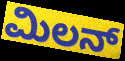
ಮಿಲನ್